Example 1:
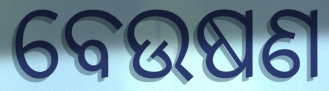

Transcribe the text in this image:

ବେଉଷଣ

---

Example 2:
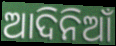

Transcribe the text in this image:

ଆଦିନିଆଁ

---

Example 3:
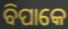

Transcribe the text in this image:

ବିପାକେ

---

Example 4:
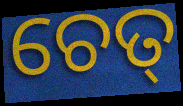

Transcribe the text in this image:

ଚେତ୍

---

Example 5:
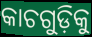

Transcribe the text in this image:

କାଚଗୁଡ଼ିକୁ